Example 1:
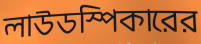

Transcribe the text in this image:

লাউডস্পিকারের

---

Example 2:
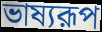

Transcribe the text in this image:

ভাষ্যরূপ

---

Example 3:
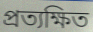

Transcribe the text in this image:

প্রত্যক্ষিত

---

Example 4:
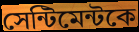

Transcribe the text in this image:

সেন্টিমেন্টকে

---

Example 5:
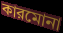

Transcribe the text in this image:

কারমোনা